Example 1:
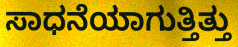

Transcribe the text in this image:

ಸಾಧನೆಯಾಗುತ್ತಿತ್ತು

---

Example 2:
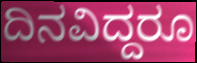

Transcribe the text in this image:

ದಿನವಿದ್ದರೂ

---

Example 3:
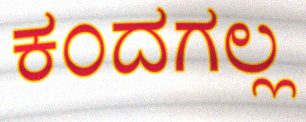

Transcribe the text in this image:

ಕಂದಗಲ್ಲ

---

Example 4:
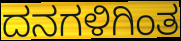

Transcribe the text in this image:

ದನಗಳಿಗಿಂತ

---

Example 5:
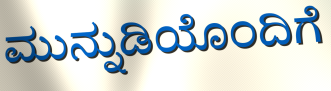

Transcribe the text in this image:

ಮುನ್ನುಡಿಯೊಂದಿಗೆ